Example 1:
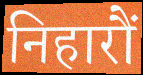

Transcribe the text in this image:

निहारौं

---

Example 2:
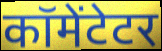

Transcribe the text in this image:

कॉमेंटेटर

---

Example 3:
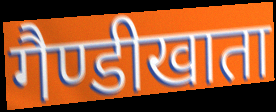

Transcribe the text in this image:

गैण्डीखाता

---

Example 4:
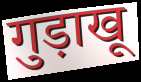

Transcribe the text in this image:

गुड़ाखू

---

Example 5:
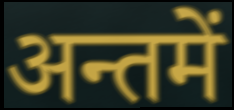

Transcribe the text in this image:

अन्तमें